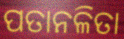
ପତାନଳିତା